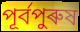
পূৰ্বপুৰুষ